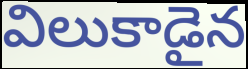
విలుకాడైన